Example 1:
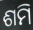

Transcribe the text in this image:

ଶମି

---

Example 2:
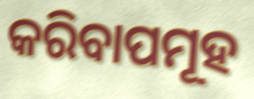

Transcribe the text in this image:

କରିବାପମୂହ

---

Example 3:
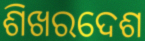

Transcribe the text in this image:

ଶିଖରଦେଶ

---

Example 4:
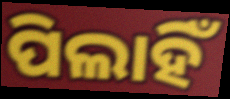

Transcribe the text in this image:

ପିଲାହିଁ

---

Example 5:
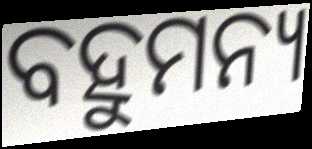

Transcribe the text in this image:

ବହୁମନ୍ୟ